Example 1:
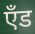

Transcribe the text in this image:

एँड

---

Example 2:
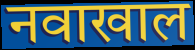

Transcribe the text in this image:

नवाखाल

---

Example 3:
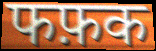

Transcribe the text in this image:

फफ़क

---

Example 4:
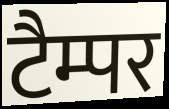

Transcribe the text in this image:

टैम्पर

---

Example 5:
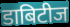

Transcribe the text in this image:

डाबिटीज